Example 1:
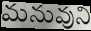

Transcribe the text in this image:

మనువుని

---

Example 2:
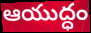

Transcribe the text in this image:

ఆయుద్ధం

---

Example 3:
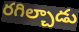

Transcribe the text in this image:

రగిల్చాడు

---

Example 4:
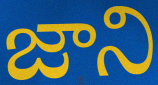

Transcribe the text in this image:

జాని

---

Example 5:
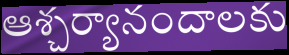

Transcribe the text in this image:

ఆశ్చర్యానందాలకు